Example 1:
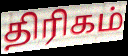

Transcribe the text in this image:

திரிகம்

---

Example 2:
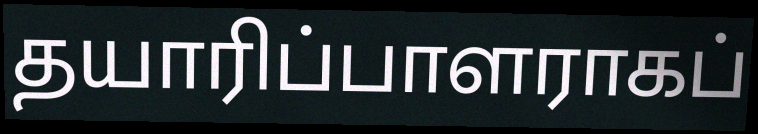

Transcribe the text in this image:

தயாரிப்பாளராகப்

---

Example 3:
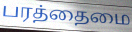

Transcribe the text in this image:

பரத்தைமை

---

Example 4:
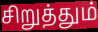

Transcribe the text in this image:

சிறுத்தும்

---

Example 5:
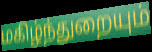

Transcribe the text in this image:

மகிழ்ந்துறையும்